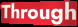
Through